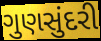
ગુણસુંદરી